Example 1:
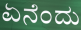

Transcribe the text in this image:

ಏನೆಂದು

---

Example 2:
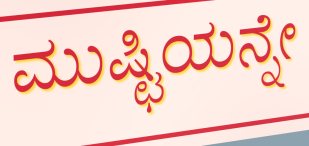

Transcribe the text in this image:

ಮುಷ್ಟಿಯನ್ನೇ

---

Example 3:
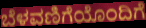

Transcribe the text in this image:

ಬೆಳವಣಿಗೆಯೊಂದಿಗೆ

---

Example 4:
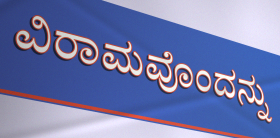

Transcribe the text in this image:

ವಿರಾಮವೊಂದನ್ನು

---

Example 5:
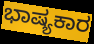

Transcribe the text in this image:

ಭಾಷ್ಯಕಾರ